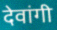
देवांगी